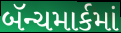
બૅન્ચમાર્કમાં